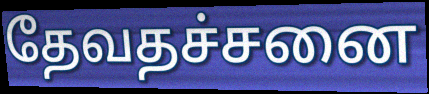
தேவதச்சனை